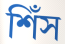
শিঁস